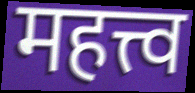
महत्त्व